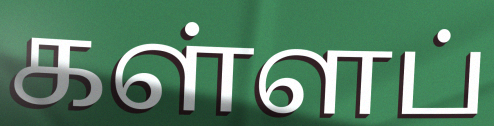
கள்ளப்